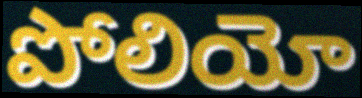
పోలియో